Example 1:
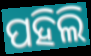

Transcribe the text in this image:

ପହିଲି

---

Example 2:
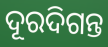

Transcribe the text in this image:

ଦୂରଦିଗନ୍ତ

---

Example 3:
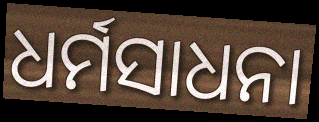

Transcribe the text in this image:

ଧର୍ମସାଧନା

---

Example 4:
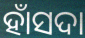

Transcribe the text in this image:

ହାଁସଦା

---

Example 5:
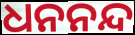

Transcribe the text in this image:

ଧନନନ୍ଦ